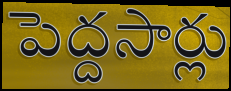
పెద్దసార్లు